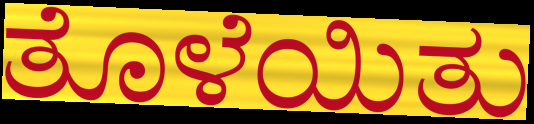
ತೊಳೆಯಿತು